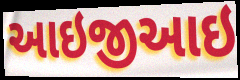
આઇજીઆઇ